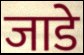
जाडे